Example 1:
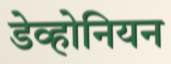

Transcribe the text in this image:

डेव्होनियन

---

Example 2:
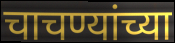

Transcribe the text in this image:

चाचण्यांच्या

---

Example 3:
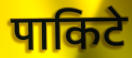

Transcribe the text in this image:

पाकिटे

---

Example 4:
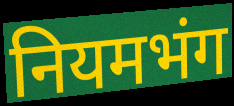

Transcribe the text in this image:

नियमभंग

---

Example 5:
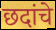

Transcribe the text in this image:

छदांचे